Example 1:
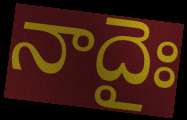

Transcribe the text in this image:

నాదైః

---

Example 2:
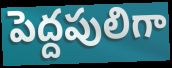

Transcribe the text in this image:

పెద్దపులిగా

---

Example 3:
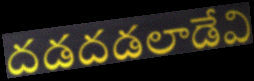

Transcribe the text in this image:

దడదడలాడేవి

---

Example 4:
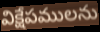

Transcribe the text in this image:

విక్షేపములను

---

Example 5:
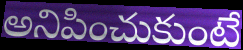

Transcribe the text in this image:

అనిపించుకుంటే